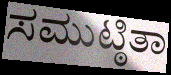
ಸಮುಟ್ಠಿತಾ